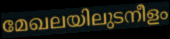
മേഖലയിലുടനീളം